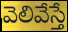
వెలివేస్తే